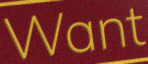
Want